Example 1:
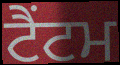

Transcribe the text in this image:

ਟੈਂਟਮ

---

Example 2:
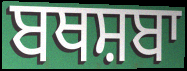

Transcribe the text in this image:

ਬਥਸ਼ਬਾ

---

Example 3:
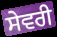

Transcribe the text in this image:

ਸੇਵਰੀ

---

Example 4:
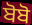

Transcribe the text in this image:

ਬੋਬੋ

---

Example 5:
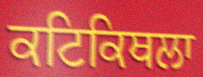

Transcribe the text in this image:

ਕਟਿਕਿਥਲਾ